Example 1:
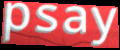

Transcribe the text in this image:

psay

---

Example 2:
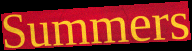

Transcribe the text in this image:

Summers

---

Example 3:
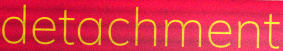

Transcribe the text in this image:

detachment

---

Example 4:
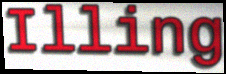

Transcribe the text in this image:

Illing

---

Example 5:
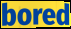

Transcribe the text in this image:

bored